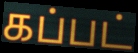
கப்பட்